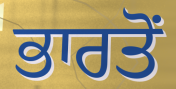
ਭਾਰਤੋਂ